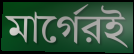
মার্গেরই